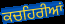
ਕਚਹਿਰੀਆਂ